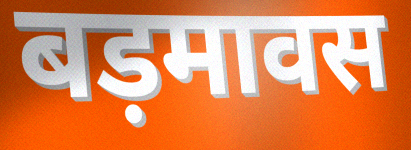
बड़मावस